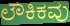
ಲೌಕಿಕವು